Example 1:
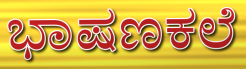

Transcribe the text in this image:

ಭಾಷಣಕಲೆ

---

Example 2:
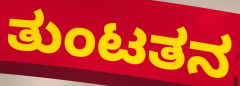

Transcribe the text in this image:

ತುಂಟತನ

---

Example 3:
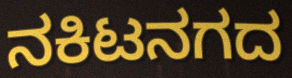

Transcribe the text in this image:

ನಕಿಟನಗದ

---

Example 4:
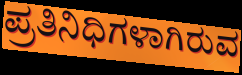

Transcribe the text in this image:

ಪ್ರತಿನಿಧಿಗಳಾಗಿರುವ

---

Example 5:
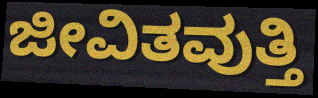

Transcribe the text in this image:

ಜೀವಿತವುತ್ತಿ